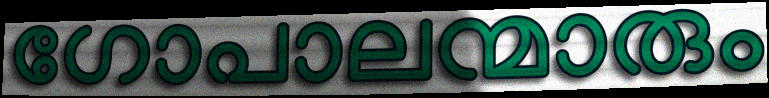
ഗോപാലന്മാരും